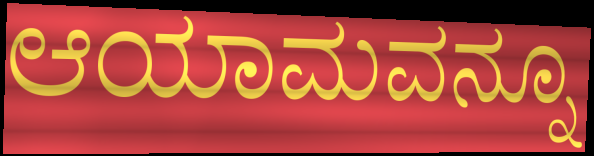
ಆಯಾಮವನ್ನೂ